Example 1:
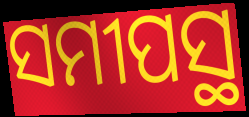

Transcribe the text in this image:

ସମୀପସ୍ଥ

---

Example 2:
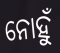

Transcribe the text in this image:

ନୋହୁଁ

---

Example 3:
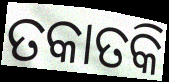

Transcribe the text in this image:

ତକାତକି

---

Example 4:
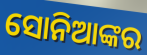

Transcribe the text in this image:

ସୋନିଆଙ୍କର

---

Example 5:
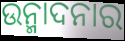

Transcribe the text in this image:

ଉନ୍ମାଦନାର